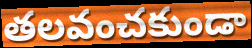
తలవంచకుండా